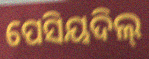
ପେସିୟଦିଲ୍